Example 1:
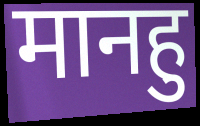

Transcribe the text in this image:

मानहु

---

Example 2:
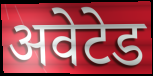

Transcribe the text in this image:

अवेटेड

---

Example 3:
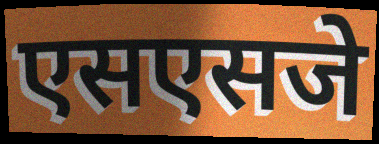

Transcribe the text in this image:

एसएसजे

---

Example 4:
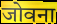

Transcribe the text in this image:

जोवना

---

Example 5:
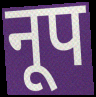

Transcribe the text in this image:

नूप